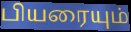
பியரையும்